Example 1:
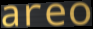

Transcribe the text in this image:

areo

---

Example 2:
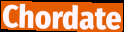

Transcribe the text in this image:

Chordate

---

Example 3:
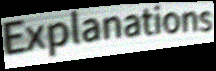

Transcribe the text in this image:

Explanations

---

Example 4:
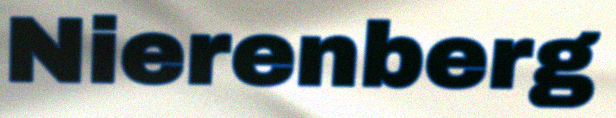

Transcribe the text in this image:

Nierenberg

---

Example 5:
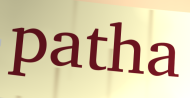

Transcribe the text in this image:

patha